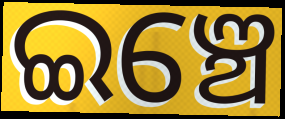
ଇଞ୍ଚେ